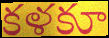
కళకూ